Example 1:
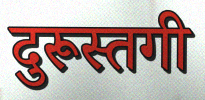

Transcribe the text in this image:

दुरूस्तगी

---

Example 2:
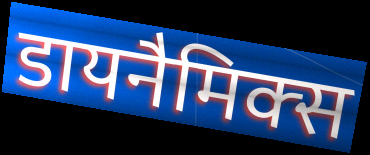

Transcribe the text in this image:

डायनैमिक्‍स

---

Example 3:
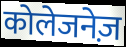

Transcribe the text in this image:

कोलेजनेज़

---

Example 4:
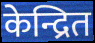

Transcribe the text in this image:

केन्द्रित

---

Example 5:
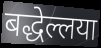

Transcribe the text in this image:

बद्धेल्लया